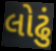
લોઢું